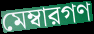
মেম্বারগণ